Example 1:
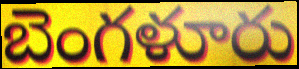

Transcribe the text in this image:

బెంగళూరు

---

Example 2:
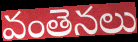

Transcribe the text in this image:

వంతెనలు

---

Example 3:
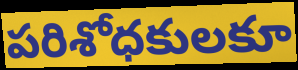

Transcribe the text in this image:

పరిశోధకులకూ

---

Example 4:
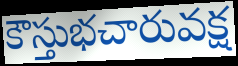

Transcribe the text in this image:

కౌస్తుభచారువక్ష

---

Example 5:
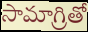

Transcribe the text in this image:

సామాగ్రితో